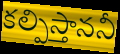
కల్పిస్తాననీ